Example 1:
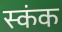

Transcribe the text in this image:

स्कंक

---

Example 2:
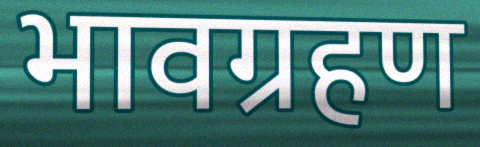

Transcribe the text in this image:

भावग्रहण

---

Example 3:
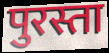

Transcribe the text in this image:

पुरस्ता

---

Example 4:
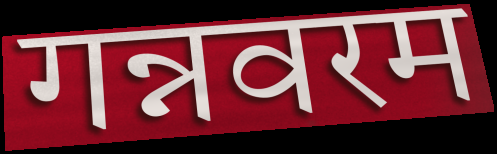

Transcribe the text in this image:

गन्नवरम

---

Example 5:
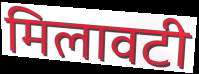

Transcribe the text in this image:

मिलावटी